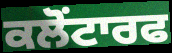
ਕਲੋਂਟਾਰਫ